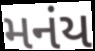
મનંય